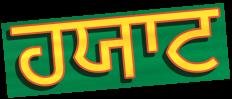
ਹਯਾਟ